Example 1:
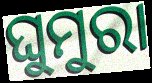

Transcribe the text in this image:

ଘୁମୁରା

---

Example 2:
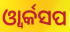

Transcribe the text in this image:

ଓ୍ୱାର୍କସପ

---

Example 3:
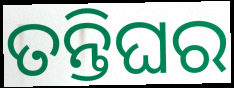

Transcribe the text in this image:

ତନ୍ତିଘର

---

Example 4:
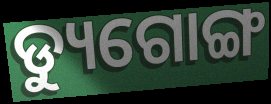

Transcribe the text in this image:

ଡ୍ୟୁଗୋଙ୍ଗ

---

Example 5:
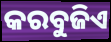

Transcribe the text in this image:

କରବୁଜିଏ